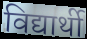
विद्यार्थी